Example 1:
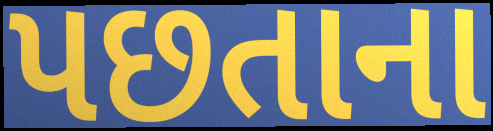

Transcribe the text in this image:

પછતાના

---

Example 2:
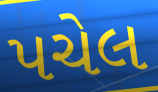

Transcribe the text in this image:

પચેલ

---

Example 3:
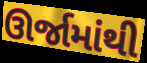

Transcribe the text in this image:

ઊર્જામાંથી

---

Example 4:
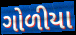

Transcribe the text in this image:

ગોળીયા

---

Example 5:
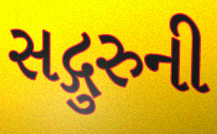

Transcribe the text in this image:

સદ્ગુરુની